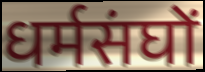
धर्मसंघों